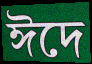
ঈদে